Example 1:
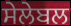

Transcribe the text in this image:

ਸੇਲੇਬਲ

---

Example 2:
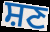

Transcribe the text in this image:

ਸ਼ਣ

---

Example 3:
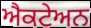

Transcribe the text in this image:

ਐਕਟੇਅਨ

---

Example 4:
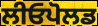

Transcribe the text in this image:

ਲੀਓਪੋਲਡ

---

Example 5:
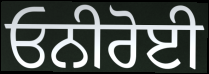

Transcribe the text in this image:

ਓਨੀਰੋਈ